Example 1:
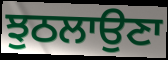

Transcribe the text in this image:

ਝੁਠਲਾਉਣਾ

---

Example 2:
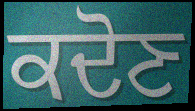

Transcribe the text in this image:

ਕਦੋਣ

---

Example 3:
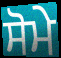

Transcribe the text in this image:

ਸੋਮੇ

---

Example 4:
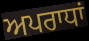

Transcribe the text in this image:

ਅਪਰਾਧਾਂ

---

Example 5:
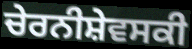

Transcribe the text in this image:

ਚੇਰਨੀਸ਼ੇਵਸਕੀ